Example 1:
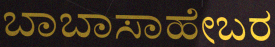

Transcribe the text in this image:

ಬಾಬಾಸಾಹೇಬರ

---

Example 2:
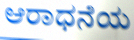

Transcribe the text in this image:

ಆರಾಧನೆಯ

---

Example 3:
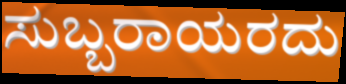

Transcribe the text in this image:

ಸುಬ್ಬರಾಯರದು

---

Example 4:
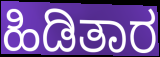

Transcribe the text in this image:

ಹಿಡಿತಾರ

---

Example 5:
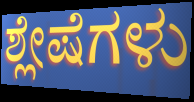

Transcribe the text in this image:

ಶ್ಲೇಷೆಗಳು